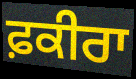
ਫ਼ਕੀਰਾ